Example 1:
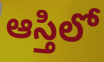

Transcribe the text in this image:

ఆస్తిలో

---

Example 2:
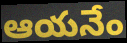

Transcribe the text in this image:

ఆయనేం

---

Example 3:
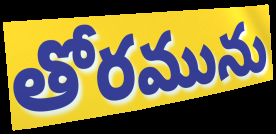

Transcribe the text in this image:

తోరమును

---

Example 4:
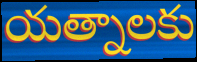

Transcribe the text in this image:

యత్నాలకు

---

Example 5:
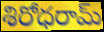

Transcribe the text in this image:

శిరోధరామ్